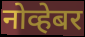
नोव्हेबर